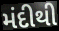
મંદીથી